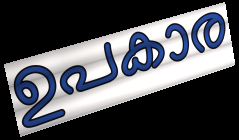
ഉപകാര